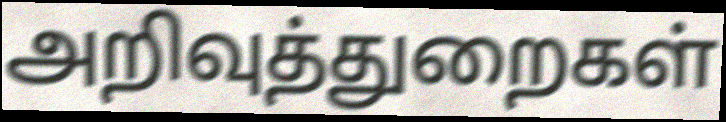
அறிவுத்துறைகள்